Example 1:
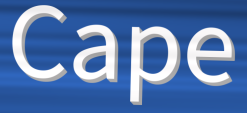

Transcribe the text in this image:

Cape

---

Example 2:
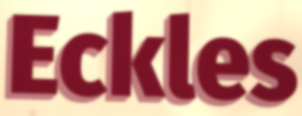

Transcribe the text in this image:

Eckles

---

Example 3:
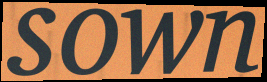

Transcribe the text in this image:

sown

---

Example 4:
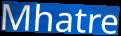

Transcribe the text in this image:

Mhatre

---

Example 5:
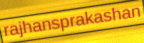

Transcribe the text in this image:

rajhansprakashan